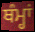
ਥੰਮ੍ਹਾਂ